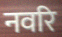
नवरि